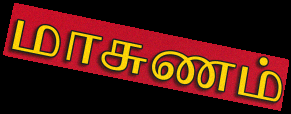
மாசுணம்